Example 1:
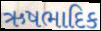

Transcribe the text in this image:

ઋષભાદિક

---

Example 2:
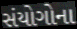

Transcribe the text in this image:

સંયોગોના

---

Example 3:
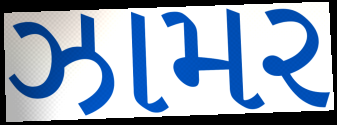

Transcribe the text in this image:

ઝામર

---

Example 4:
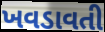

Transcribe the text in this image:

ખવડાવતી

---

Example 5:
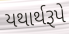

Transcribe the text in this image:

યથાર્થરૂપે